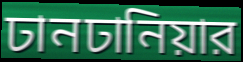
ঢানঢানিয়ার